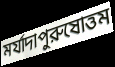
মর্যাদাপুরুষোত্তম